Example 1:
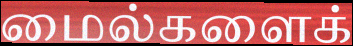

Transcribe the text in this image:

மைல்களைக்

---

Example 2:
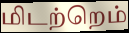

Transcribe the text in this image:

மிடற்றெம்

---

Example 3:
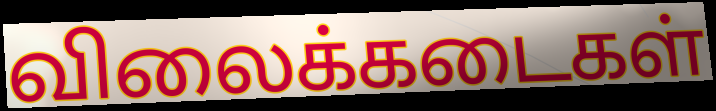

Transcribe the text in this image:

விலைக்கடைகள்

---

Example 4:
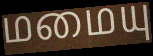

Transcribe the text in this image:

மமையு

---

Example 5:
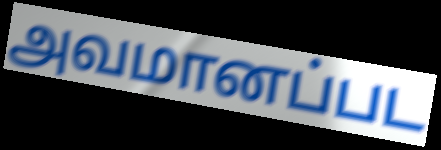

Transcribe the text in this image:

அவமானப்பட